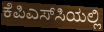
ಕೆಪಿಎಸ್‌ಸಿಯಲ್ಲಿ